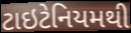
ટાઇટેનિયમથી